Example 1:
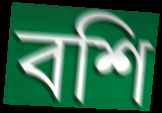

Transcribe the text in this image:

বশি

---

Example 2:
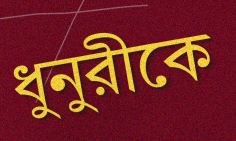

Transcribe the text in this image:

ধুনুরীকে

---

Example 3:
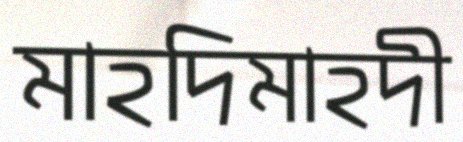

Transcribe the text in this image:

মাহদিমাহদী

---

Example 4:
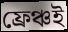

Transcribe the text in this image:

ফ্রেঞ্চই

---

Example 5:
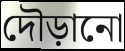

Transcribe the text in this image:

দৌড়ানো